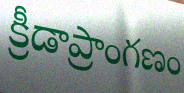
క్రీడాప్రాంగణం